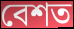
বেশত